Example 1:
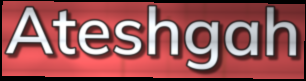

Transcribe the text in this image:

Ateshgah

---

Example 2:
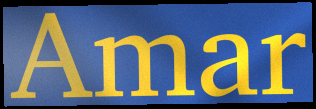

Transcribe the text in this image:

Amar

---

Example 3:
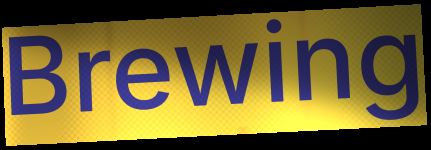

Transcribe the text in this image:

Brewing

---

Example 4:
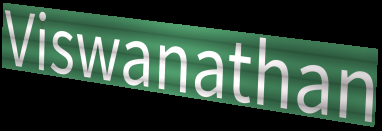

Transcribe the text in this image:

Viswanathan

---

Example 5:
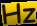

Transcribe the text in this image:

Hz